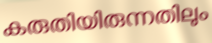
കരുതിയിരുന്നതിലും